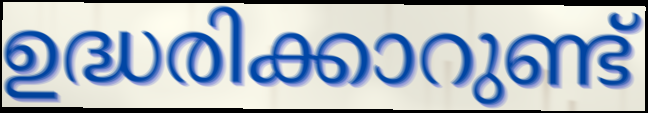
ഉദ്ധരിക്കാറുണ്ട്